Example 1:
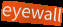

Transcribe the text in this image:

eyewall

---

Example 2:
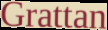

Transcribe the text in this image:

Grattan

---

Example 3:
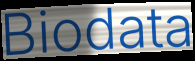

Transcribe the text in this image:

Biodata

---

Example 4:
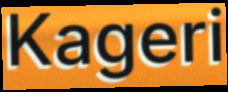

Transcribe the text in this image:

Kageri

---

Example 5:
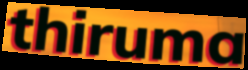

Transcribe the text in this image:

thiruma